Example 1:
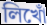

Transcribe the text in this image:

লিখোঁ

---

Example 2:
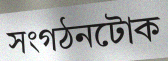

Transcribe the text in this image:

সংগঠনটোক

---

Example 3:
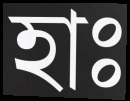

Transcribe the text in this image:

হাঃ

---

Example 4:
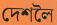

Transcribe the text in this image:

দেশলৈ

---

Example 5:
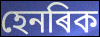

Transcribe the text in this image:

হেনৰিক